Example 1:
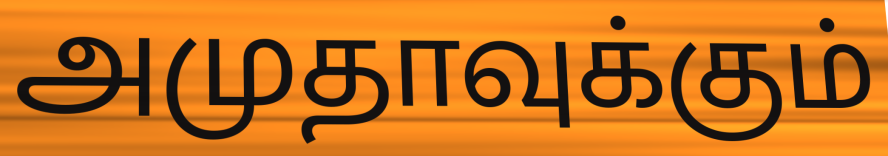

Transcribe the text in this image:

அமுதாவுக்கும்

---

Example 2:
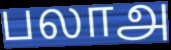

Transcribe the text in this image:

பலாஅ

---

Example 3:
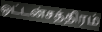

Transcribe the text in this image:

ஒட்டன்சத்திரம்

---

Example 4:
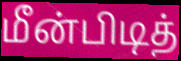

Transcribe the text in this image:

மீன்பிடித்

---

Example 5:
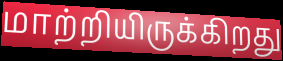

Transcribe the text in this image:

மாற்றியிருக்கிறது